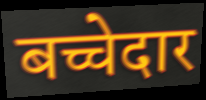
बच्चेदार